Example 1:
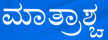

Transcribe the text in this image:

ಮಾತ್ರಾಶ್ಚ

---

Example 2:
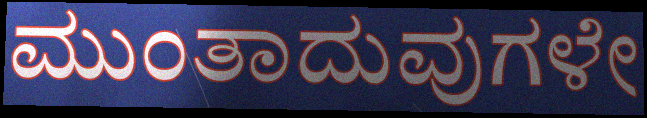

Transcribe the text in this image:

ಮುಂತಾದುವುಗಳೇ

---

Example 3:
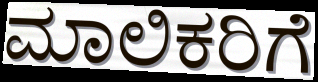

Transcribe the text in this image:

ಮಾಲಿಕರಿಗೆ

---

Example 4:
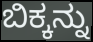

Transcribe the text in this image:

ಬಿಕ್ಕನ್ನು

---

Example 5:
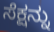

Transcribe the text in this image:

ಸೆಕ್ಷನ್ನು